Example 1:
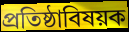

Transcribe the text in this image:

প্রতিষ্ঠাবিষয়ক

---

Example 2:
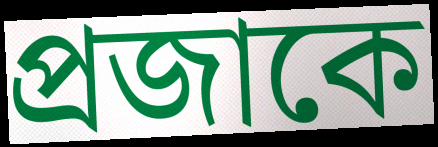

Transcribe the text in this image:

প্রজাকে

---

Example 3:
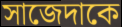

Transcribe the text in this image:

সাজেদাকে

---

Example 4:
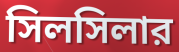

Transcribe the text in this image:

সিলসিলার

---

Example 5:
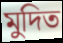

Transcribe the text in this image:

মুদিত